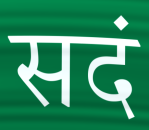
सदं